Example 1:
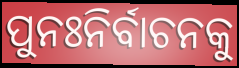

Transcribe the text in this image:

ପୁନଃନିର୍ବାଚନକୁ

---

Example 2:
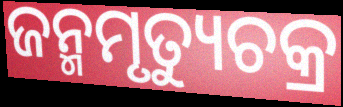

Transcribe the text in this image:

ଜନ୍ମମୃତ୍ୟୁଚକ୍ର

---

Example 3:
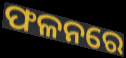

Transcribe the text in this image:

ଫଳନରେ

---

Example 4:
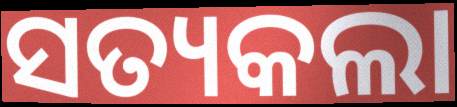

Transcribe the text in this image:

ସତ୍ୟକଲା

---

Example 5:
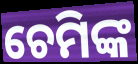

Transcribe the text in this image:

ଚେମିଙ୍କ